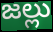
జల్లు